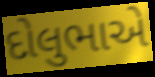
દોલુભાએ